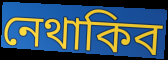
নেথাকিব